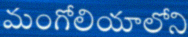
మంగోలియాలోని